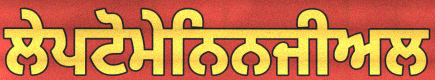
ਲੇਪਟੋਮੇਨਿਨਜੀਅਲ